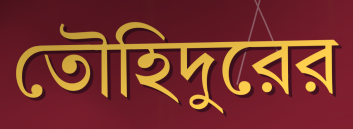
তৌহিদুরের